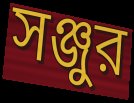
সঞ্জুর